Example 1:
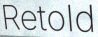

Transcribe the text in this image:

Retold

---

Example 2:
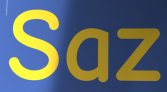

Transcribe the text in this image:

Saz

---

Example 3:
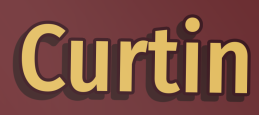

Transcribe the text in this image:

Curtin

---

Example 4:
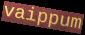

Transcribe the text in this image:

vaippum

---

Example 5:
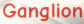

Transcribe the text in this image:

Ganglion